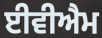
ਈਵੀਐਮ